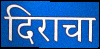
दिराचा